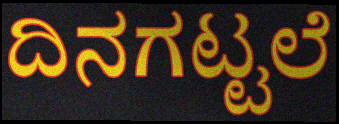
ದಿನಗಟ್ಟಲೆ